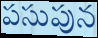
పసుపున